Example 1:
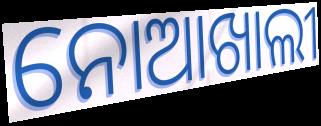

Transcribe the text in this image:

ନୋଆଖାଲୀ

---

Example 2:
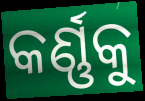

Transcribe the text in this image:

କର୍ଣ୍ଣକୁ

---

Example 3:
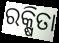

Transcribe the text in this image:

ରକ୍ଷିତା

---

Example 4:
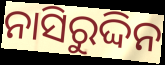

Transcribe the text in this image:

ନାସିରୁଦ୍ଦିନ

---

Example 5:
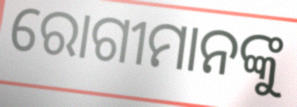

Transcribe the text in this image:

ରୋଗୀମାନଙ୍କୁ